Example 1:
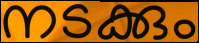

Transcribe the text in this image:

നടക്കും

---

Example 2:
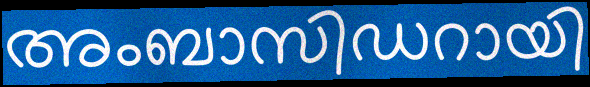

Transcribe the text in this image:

അംബാസിഡറായി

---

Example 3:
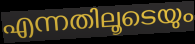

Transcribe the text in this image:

എന്നതിലൂടെയും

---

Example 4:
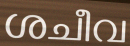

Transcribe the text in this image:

ശചീവ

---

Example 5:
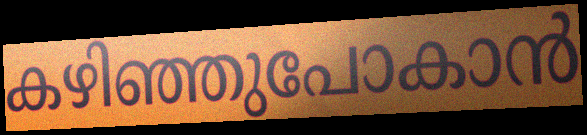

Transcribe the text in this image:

കഴിഞ്ഞുപോകാൻ